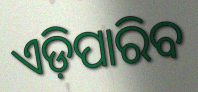
ଏଡ଼ିପାରିବ